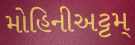
મોહિનીઅટ્ટમ્